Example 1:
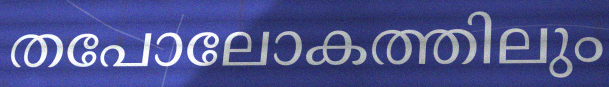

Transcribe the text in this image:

തപോലോകത്തിലും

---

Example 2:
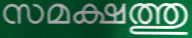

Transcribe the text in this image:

സമക്ഷത്തു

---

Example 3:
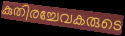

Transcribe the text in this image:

കുതിരച്ചേവകരുടെ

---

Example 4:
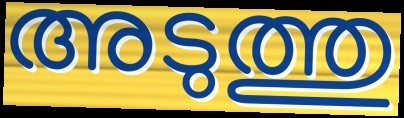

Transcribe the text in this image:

അടുത്തു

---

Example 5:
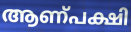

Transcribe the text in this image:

ആണ്പക്ഷി